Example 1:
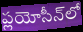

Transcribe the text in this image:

ప్లయోసీన్‌లో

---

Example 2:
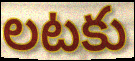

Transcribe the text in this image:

లటకు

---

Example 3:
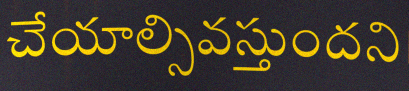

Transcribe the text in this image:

చేయాల్సివస్తుందని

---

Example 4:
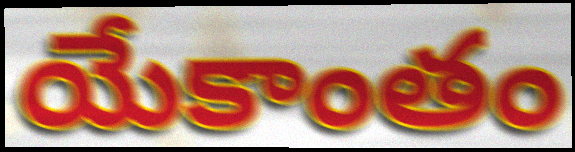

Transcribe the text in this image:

యేకాంతం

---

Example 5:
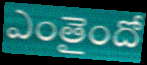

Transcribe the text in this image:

ఎంతైందో